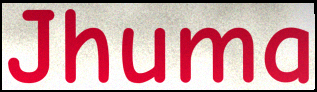
Jhuma